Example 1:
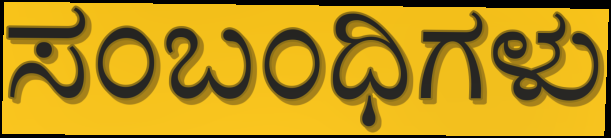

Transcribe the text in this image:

ಸಂಬಂಧಿಗಳು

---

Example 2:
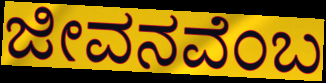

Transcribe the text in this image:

ಜೀವನವೆಂಬ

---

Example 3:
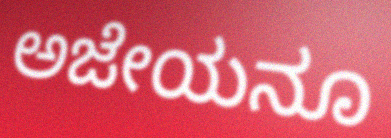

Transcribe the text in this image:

ಅಜೇಯನೂ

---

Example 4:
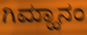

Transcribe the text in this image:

ಗಿಮ್ಹಾನಂ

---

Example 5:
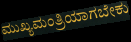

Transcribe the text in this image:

ಮುಖ್ಯಮಂತ್ರಿಯಾಗಬೇಕು